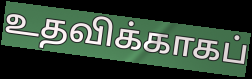
உதவிக்காகப்